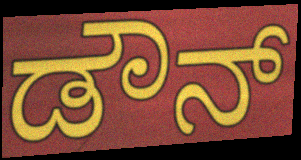
ಡೌನ್